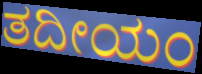
ತದೀಯಂ